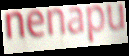
nenapu